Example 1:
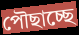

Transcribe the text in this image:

পৌছাচ্ছে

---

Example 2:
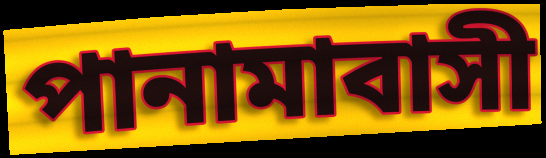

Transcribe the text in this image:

পানামাবাসী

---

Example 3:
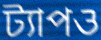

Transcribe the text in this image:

ট্যাপও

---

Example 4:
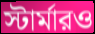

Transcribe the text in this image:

স্টার্মারও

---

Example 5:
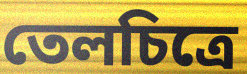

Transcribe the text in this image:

তেলচিত্রে